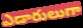
ఎడారులుగా